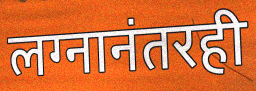
लग्नानंतरही